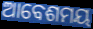
ଆବେଶମୟ